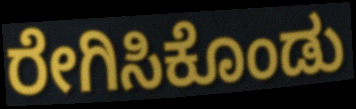
ರೇಗಿಸಿಕೊಂಡು